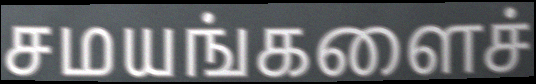
சமயங்களைச்